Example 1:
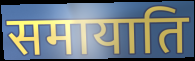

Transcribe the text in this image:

समायाति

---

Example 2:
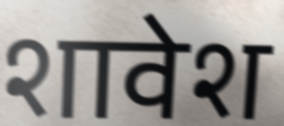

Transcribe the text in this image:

शावेश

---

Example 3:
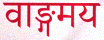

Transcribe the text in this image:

वाङ्गमय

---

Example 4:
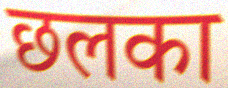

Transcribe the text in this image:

छलका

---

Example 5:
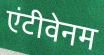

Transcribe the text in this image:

एंटीवेनम